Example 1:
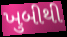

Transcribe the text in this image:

ખુબીથી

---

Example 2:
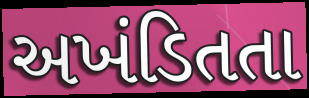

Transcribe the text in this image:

અખંડિતતા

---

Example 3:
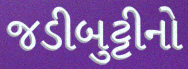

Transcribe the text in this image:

જડીબુટ્ટીનો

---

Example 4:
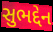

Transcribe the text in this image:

સુભદ્દેન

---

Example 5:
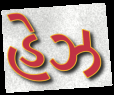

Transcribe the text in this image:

હેઝ